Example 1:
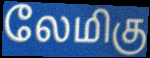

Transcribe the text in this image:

லேமிகு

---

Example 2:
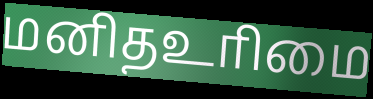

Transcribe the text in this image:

மனிதஉரிமை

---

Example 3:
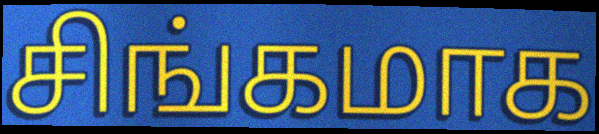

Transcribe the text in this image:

சிங்கமாக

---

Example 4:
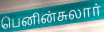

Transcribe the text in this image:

பெனின்சுலார்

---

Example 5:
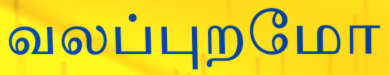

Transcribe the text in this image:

வலப்புறமோ